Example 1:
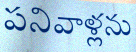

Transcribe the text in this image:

పనివాళ్లను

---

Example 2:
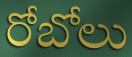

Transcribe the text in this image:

రోబోలు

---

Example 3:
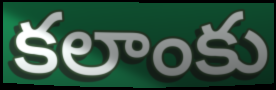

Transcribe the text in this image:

కలాంకు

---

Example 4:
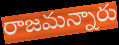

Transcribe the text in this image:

రాజమన్నారు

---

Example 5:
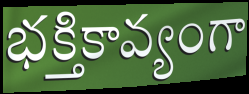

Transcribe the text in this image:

భక్తికావ్యంగా